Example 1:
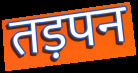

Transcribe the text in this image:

तड़पन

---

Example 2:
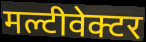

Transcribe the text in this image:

मल्टीवेक्टर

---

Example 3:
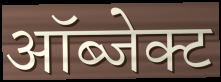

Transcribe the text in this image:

ऑब्जेक्ट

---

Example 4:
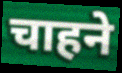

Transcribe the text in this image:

चाहने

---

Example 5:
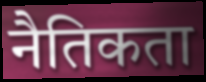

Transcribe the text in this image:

नैतिकता